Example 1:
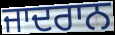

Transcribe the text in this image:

ਜਾਦਰਾਨ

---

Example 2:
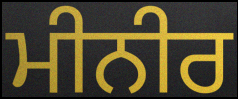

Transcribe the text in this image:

ਮੀਨੀਰ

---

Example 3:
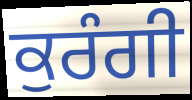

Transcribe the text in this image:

ਕੁਰੰਗੀ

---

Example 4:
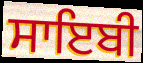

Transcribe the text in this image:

ਸਾਇਬੀ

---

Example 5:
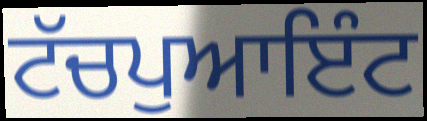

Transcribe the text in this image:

ਟੱਚਪੁਆਇੰਟ